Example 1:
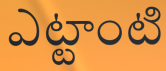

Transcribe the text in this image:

ఎట్టాంటి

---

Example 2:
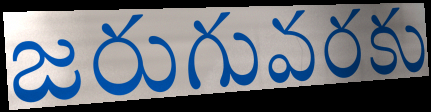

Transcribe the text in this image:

జరుగువరకు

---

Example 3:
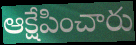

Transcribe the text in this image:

ఆక్షేపించారు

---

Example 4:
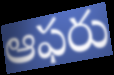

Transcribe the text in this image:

ఆఫరు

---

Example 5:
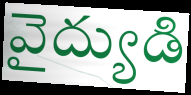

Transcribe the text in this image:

వైద్యుడి